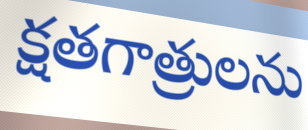
క్షతగాత్రులను